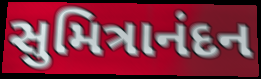
સુમિત્રાનંદન